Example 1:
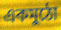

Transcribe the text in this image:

একমুঠো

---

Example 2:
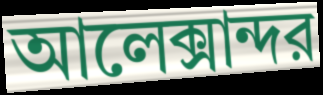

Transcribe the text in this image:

আলেক্সান্দর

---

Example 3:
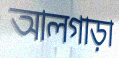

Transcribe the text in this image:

আলগাড়া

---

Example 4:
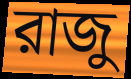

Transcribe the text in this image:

রাজু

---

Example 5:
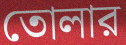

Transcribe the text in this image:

তোলার